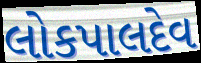
લોકપાલદેવ